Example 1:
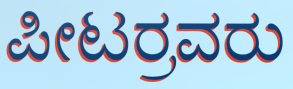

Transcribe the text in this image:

ಪೀಟರ್‍ರವರು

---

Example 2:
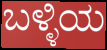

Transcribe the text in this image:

ಬಳ್ಳಿಯ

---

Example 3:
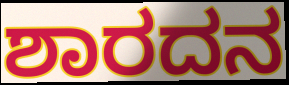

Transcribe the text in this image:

ಶಾರದನ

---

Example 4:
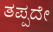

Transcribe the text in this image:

ತಪ್ಪದೇ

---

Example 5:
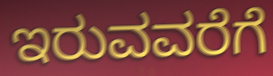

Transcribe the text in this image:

ಇರುವವರೆಗೆ